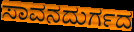
ಸಾವನದುರ್ಗದ